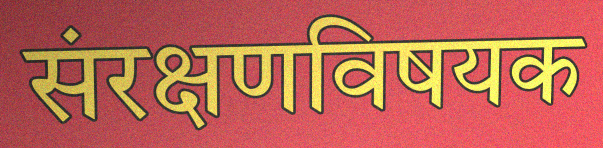
संरक्षणविषयक